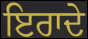
ਇਰਾਦੇ